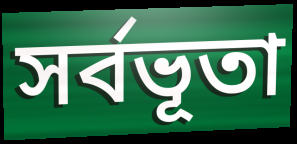
সর্বভূতা